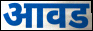
आवड